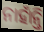
ନାହାଁନ୍ତି